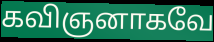
கவிஞனாகவே